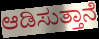
ಆಡಿಸುತ್ತಾನೆ